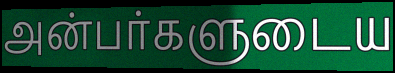
அன்பர்களுடைய